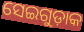
ସେଇଗୁଡ଼ାକ